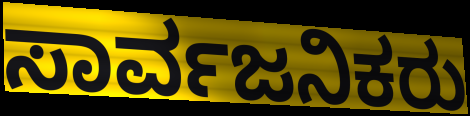
ಸಾರ್ವಜನಿಕರು